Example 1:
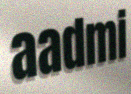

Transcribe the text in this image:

aadmi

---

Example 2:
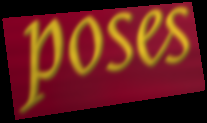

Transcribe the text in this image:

poses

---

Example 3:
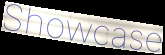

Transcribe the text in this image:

Showcase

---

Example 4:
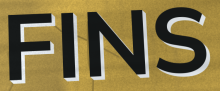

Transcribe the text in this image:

FINS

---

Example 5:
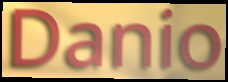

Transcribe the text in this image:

Danio